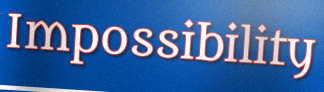
Impossibility